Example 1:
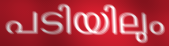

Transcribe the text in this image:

പടിയിലും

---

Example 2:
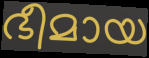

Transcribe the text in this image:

ഭീമായ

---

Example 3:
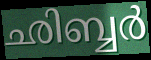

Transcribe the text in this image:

ഛിബ്ബർ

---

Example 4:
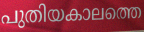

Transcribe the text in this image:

പുതിയകാലത്തെ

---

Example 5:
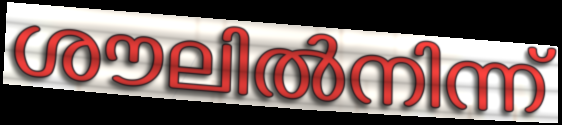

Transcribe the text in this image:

ശൗലിൽനിന്ന്